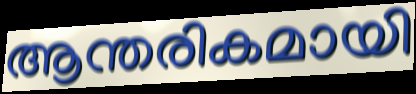
ആന്തരികമായി